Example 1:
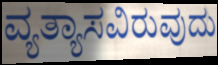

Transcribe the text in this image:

ವ್ಯತ್ಯಾಸವಿರುವುದು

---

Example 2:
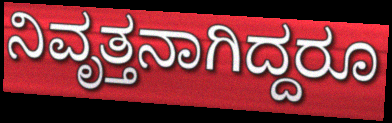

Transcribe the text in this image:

ನಿವೃತ್ತನಾಗಿದ್ದರೂ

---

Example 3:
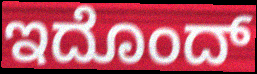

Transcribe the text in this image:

ಇದೊಂದ್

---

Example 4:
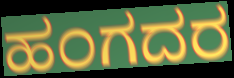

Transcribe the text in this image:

ಹಂಗದರ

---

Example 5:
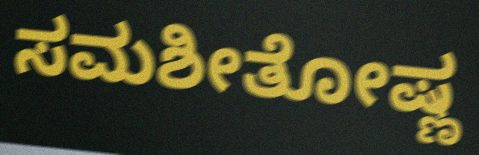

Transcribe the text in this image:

ಸಮಶೀತೋಷ್ಣ